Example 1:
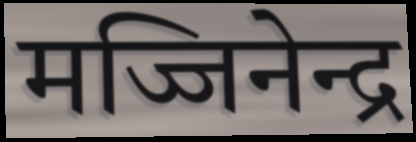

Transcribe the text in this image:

मज्जिनेन्द्र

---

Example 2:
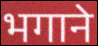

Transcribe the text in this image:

भगाने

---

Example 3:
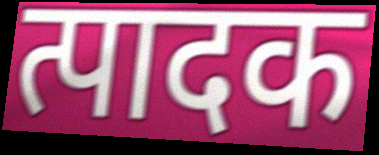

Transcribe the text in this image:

त्पादक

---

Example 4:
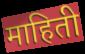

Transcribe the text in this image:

माहिती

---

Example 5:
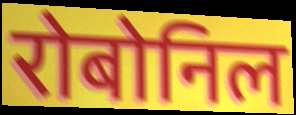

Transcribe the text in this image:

रोबोनिल